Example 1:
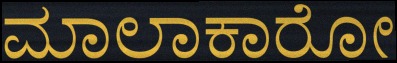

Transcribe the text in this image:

ಮಾಲಾಕಾರೋ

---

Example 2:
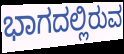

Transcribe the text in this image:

ಭಾಗದಲ್ಲಿರುವ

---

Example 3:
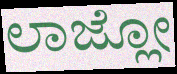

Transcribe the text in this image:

ಲಾಜ್ಲೋ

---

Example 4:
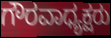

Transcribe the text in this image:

ಗೌರವಾಧ್ಯಕ್ಷರು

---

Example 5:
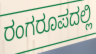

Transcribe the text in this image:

ರಂಗರೂಪದಲ್ಲಿ